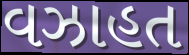
વઝાહત